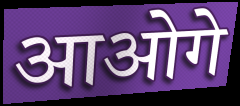
आओगे